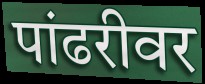
पांढरीवर